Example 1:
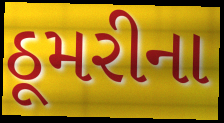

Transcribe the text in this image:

ઠૂમરીના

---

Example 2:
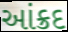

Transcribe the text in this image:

આંક્રદ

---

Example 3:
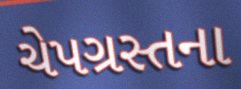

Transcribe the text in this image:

ચેપગ્રસ્તના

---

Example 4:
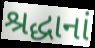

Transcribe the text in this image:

શ્રદ્ધાનાં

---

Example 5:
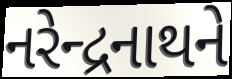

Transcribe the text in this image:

નરેન્દ્રનાથને